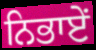
ਨਿਭਾਏਂ